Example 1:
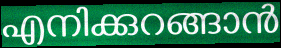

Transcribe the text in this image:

എനിക്കുറങ്ങാൻ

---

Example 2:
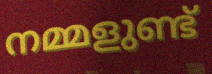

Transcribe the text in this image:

നമ്മളുണ്ട്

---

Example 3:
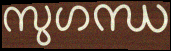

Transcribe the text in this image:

സുഗന്ധ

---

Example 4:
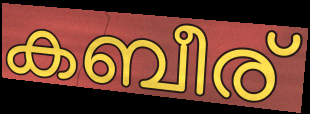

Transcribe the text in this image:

കബീര്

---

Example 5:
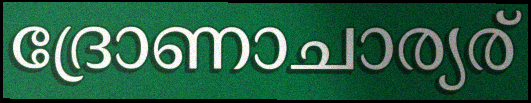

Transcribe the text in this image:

ദ്രോണാചാര്യര്